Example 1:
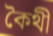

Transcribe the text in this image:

কৈথী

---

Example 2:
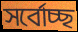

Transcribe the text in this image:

সৰ্বোচ্ছ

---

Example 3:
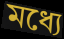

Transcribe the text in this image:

মধ্যে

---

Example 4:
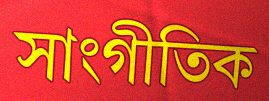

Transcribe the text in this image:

সাংগীতিক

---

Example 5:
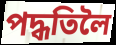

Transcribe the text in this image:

পদ্ধতিলৈ